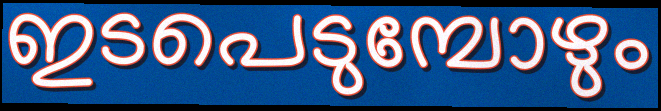
ഇടപെടുമ്പോഴും